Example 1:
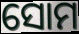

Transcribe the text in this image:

ସୋମ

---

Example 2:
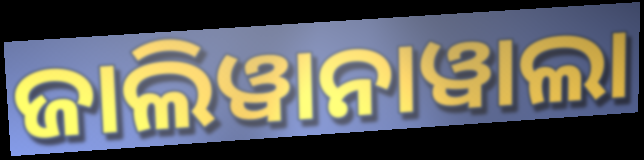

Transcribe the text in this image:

ଜାଲିୱାନାୱାଲା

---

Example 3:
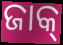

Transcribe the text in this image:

ଜାକ୍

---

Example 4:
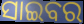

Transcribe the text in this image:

ସାଇବର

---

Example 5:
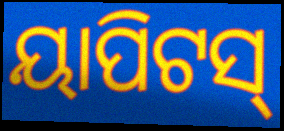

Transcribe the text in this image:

ୟାପିଟସ୍